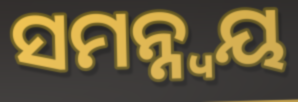
ସମନ୍ନ୍ୱୟ